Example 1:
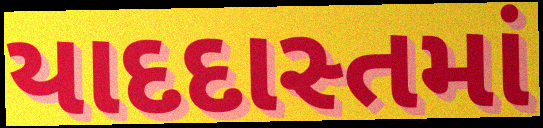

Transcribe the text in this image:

યાદદાસ્તમાં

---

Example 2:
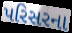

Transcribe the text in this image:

પરિસરના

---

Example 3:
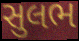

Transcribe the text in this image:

સુલભ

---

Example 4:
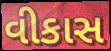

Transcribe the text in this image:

વીકાસ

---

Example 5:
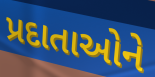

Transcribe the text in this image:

પ્રદાતાઓને